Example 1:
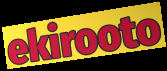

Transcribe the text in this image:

ekirooto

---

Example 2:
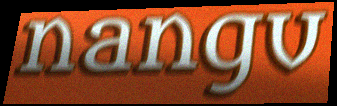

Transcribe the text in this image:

nangu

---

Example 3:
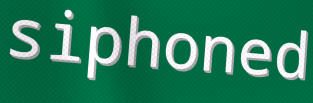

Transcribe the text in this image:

siphoned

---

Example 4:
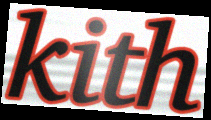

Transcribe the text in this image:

kith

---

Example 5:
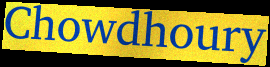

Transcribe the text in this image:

Chowdhoury